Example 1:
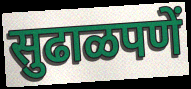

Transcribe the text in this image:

सुढाळपणें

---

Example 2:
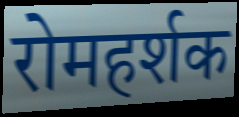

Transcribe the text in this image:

रोमहर्शक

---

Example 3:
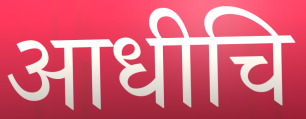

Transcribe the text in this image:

आधीचि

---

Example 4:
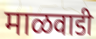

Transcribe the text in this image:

माळवाडी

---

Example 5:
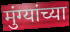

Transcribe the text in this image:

मुंग्यांच्या